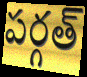
పర్గత్